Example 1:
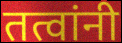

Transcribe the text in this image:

तत्वांनी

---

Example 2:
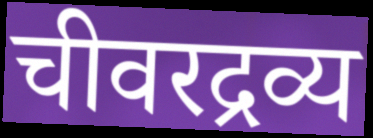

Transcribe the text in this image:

चीवरद्रव्य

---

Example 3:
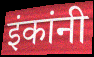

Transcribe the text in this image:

इंकांनी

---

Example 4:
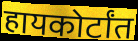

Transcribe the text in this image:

हायकोर्टांत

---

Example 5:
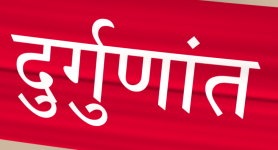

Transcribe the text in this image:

दुर्गुणांत